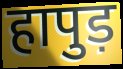
हापुड़